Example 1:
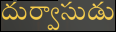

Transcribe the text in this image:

దుర్వాసుడు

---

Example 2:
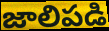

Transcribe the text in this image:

జాలిపడి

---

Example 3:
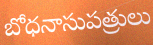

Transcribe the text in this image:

బోధనాసుపత్రులు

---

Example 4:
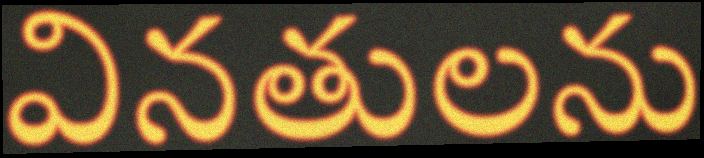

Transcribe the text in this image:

వినతులను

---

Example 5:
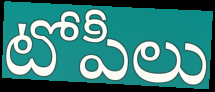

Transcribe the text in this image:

టోపీలు